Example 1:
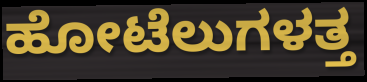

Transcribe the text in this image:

ಹೋಟೆಲುಗಳತ್ತ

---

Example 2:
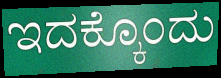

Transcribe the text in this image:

ಇದಕ್ಕೊಂದು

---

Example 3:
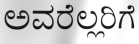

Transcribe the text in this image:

ಅವರೆಲ್ಲರಿಗೆ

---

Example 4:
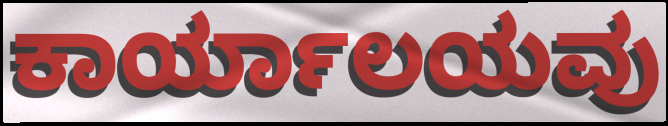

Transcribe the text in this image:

ಕಾರ್ಯಾಲಯವು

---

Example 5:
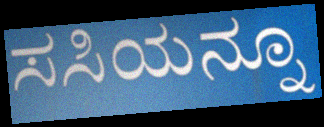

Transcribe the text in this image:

ಸಸಿಯನ್ನೂ